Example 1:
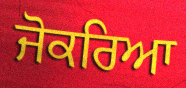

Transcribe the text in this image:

ਜੋਕਰਿਆ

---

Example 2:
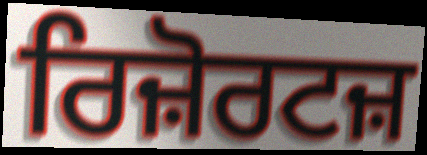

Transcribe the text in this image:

ਰਿਜ਼ੋਰਟਜ਼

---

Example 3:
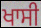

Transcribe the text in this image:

ਖਾਸੀ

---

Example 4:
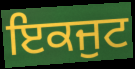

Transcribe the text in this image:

ਇਕਜੁਟ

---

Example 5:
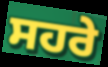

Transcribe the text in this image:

ਸਹਰੇ